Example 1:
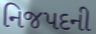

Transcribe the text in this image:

નિજપદની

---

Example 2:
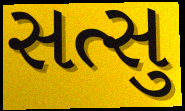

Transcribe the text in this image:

સત્સુ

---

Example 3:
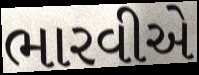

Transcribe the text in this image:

ભારવીએ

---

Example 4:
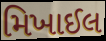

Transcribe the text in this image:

મિખાઈલ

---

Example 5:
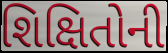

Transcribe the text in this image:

શિક્ષિતોની